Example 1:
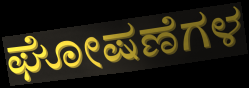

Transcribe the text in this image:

ಘೋಷಣೆಗಳ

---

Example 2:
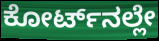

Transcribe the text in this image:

ಕೋರ್ಟ್‌ನಲ್ಲೇ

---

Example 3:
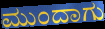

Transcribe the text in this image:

ಮುಂದಾಗು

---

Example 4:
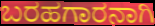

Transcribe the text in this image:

ಬರಹಗಾರನಾಗಿ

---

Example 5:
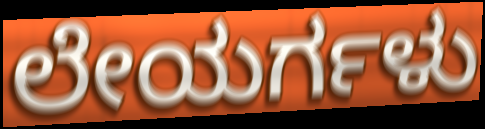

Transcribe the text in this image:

ಲೇಯರ್ಗಳು